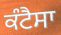
ਕੰਟੈਸਾ